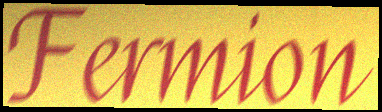
Fermion